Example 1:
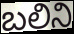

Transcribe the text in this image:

బలిని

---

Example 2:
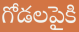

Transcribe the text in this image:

గోడలపైకి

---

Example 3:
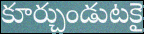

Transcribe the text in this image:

కూర్చుండుటకై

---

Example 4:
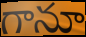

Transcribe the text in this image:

గానూ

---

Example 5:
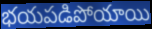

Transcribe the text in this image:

భయపడిపోయాయి